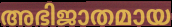
അഭിജാതമായ